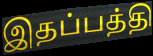
இதப்பத்தி